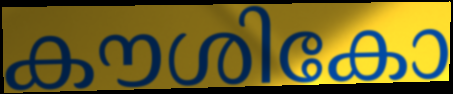
കൗശികോ